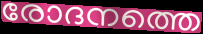
രോദനത്തെ